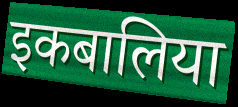
इकबालिया